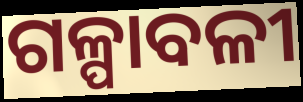
ଗଳ୍ପାବଳୀ